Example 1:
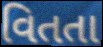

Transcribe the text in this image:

વિતતા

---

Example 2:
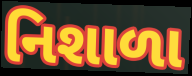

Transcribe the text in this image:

નિશાળા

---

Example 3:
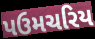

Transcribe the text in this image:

પઉમચરિય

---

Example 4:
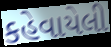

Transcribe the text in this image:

કહેવાયેલી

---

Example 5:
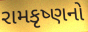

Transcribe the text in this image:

રામકૃષ્ણનો